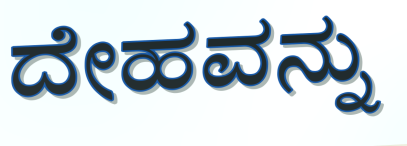
ದೇಹವನ್ನು